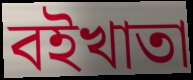
বইখাতা